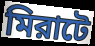
মিরাটে